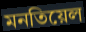
মনতিয়েল